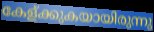
കേള്ക്കുകയായിരുന്നു